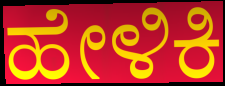
ಹೇಳಿಕಿ